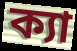
ক্যা